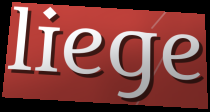
liege